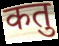
कतु